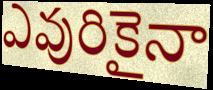
ఎవురికైనా